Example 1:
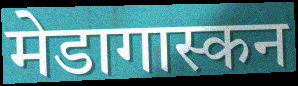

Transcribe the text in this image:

मेडागास्कन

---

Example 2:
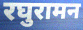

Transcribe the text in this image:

रघुरामन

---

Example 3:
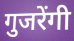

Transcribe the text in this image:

गुजरेंगी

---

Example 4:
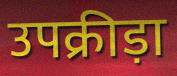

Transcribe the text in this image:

उपक्रीड़ा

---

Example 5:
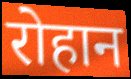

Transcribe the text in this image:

रोहान